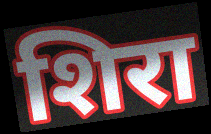
शिरा